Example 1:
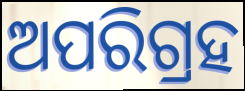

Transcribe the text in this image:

ଅପରିଗ୍ରହ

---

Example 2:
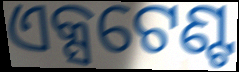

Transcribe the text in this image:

ଏକ୍ସଟେଣ୍ଟ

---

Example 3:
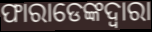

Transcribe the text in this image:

ଫାରାଡେଙ୍କଦ୍ୱାରା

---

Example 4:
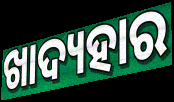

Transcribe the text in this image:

ଖାଦ୍ୟହାର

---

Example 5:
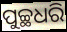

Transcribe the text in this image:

ପୁଚ୍ଛଧରି